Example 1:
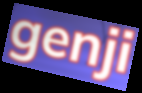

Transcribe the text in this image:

genji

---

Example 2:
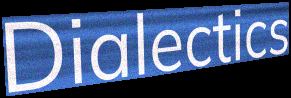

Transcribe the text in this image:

Dialectics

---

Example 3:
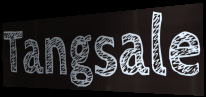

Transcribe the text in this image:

Tangsale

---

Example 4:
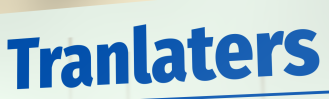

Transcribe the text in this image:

Tranlaters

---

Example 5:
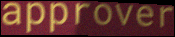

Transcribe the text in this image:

approver